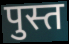
पुस्त